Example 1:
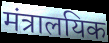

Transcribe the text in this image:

मंत्रालयिक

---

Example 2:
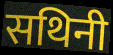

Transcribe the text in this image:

सथिनी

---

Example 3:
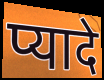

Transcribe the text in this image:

प्यादे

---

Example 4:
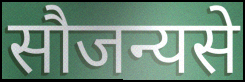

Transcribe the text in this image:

सौजन्यसे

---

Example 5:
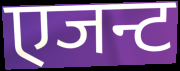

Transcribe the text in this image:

एजन्ट